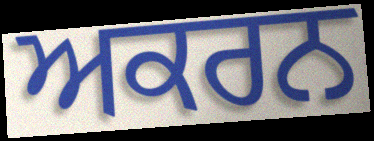
ਅਕਰਨ